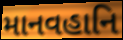
માનવહાનિ